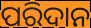
ପରିଦାନ